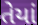
તેયાં